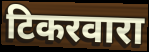
टिकरवारा